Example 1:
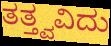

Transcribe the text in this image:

ತತ್ತ್ವವಿದು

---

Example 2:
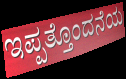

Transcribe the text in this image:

ಇಪ್ಪತ್ತೊಂದನೆಯ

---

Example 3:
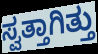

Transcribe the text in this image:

ಸ್ವತ್ತಾಗಿತ್ತು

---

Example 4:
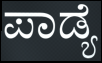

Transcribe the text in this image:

ಪಾಡ್ಯೆ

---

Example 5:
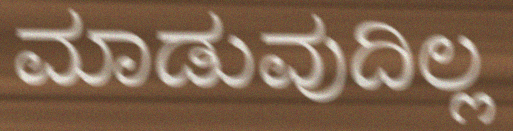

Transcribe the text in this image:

ಮಾಡುವುದಿಲ್ಲ